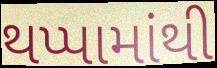
થપ્પામાંથી